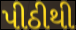
પીઠીથી